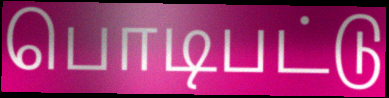
பொடிபட்டு